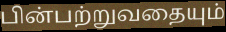
பின்பற்றுவதையும்